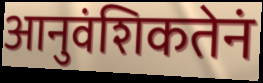
आनुवंशिकतेनं